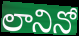
లానినో